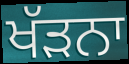
ਖੱੜਨਾ